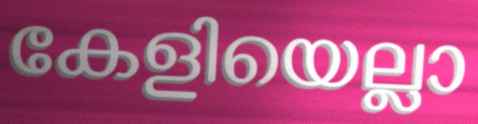
കേളിയെല്ലാ